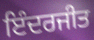
ਇੰਦਰਜੀਤ